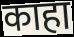
काहा